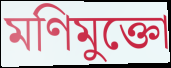
মণিমুক্তো